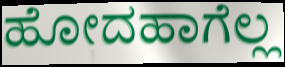
ಹೋದಹಾಗೆಲ್ಲ